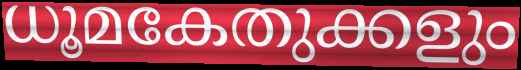
ധൂമകേതുക്കളും